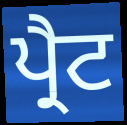
ਪ੍ਰੈਟ